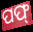
ପଫ୍